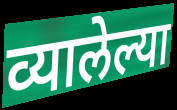
व्यालेल्या